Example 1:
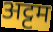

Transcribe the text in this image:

अट्टम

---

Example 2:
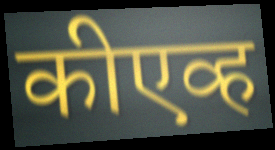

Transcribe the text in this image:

कीएव्ह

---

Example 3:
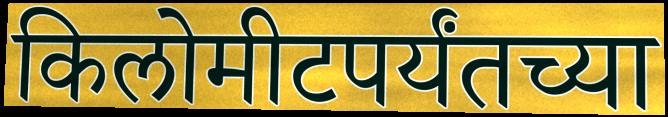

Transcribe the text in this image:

किलोमीटपर्यंतच्या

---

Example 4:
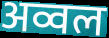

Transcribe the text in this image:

अव्वल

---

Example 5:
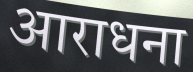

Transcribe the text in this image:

आराधना